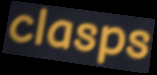
clasps